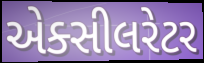
એક્સીલરેટર